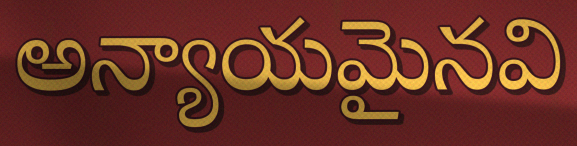
అన్యాయమైనవి